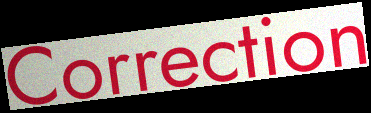
Correction